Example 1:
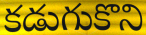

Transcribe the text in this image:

కడుగుకొని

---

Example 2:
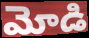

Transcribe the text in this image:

మోడి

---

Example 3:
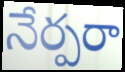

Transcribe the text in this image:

నేర్పరా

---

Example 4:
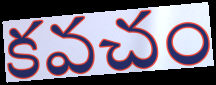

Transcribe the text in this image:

కవచం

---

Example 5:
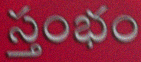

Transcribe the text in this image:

స్తంభం